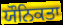
ਯੌਨਿਕਤਾ